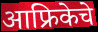
आफ्रिकेचे